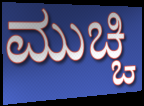
ಮುಚ್ಚಿ